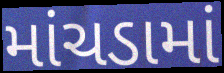
માંચડામાં